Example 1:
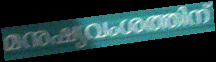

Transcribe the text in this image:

മനുഷ്യവംശത്തിന്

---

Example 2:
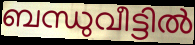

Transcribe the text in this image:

ബന്ധുവീട്ടിൽ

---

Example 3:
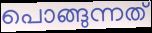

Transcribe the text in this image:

പൊങ്ങുന്നത്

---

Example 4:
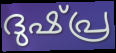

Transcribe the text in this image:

ദുഷ്‌പ്ര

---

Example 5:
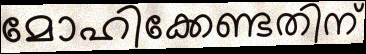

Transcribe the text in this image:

മോഹിക്കേണ്ടതിന്